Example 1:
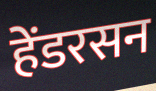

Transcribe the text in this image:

हेंडरसन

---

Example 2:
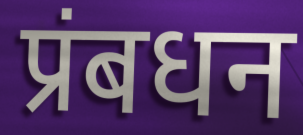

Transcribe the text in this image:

प्रंबधन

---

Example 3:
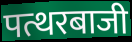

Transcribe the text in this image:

पत्थरबाजी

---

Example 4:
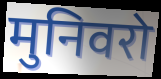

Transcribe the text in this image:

मुनिवरो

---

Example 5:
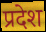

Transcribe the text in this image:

प्रदेश